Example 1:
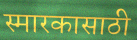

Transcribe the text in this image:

स्मारकासाठी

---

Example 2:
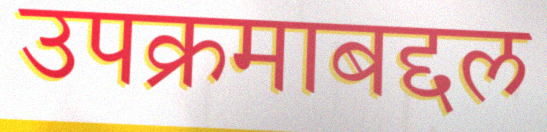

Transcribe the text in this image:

उपक्रमाबद्दल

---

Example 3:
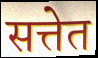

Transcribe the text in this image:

सत्तेत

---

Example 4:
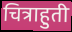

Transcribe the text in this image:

चित्राहुती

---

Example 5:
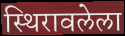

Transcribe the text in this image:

स्थिरावलेला